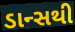
ડાન્સથી